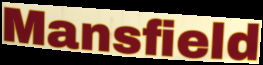
Mansfield